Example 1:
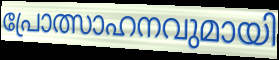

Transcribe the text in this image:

പ്രോത്സാഹനവുമായി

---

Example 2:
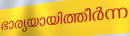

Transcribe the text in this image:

ഭാര്യയായിത്തീർന്ന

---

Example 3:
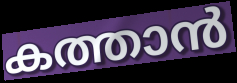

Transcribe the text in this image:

കത്താൻ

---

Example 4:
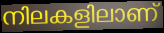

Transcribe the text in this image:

നിലകളിലാണ്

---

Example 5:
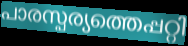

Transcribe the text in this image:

പാരസ്പര്യത്തെപ്പറ്റി